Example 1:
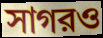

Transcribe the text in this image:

সাগরও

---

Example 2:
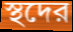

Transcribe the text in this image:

স্থদের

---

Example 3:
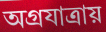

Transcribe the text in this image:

অগ্রযাত্রায়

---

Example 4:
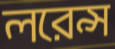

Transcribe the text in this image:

লরেন্স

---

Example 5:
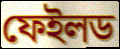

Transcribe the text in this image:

ফেইলড